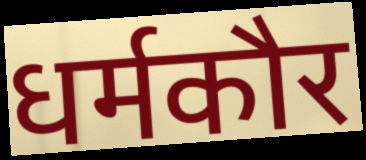
धर्मकौर